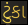
ટુંકા